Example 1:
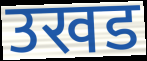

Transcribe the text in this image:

उखड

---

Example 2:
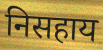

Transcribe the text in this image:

निसहाय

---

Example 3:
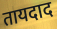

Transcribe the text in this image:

तायदाद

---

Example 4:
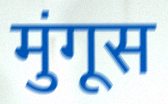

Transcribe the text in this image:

मुंगूस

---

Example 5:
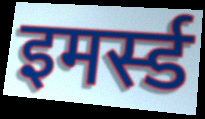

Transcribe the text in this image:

इमर्स्ड